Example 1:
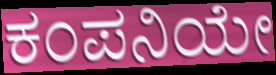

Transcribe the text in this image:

ಕಂಪನಿಯೇ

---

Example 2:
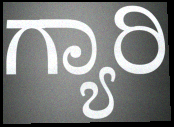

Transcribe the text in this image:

ಗ್ಯಾರಿ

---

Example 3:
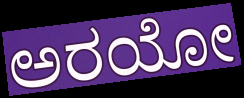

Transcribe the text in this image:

ಅರಯೋ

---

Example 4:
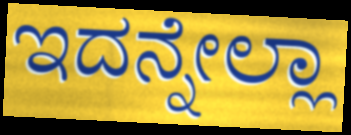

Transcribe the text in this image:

ಇದನ್ನೇಲ್ಲಾ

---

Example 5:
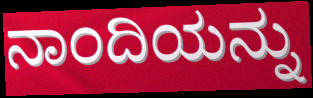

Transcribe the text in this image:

ನಾಂದಿಯನ್ನು